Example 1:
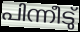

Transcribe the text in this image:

പിന്നീടു്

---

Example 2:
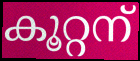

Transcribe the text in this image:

കൂറ്റന്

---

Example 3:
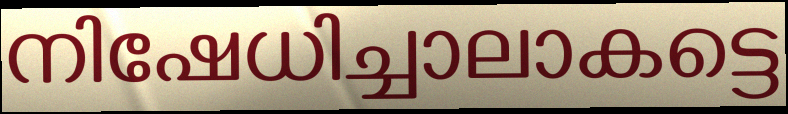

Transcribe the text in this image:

നിഷേധിച്ചാലാകട്ടെ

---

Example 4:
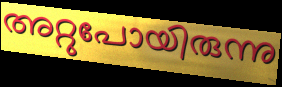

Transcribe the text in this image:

അറ്റുപോയിരുന്നു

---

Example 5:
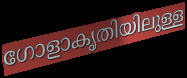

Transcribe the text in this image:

ഗോളാകൃതിയിലുള്ള